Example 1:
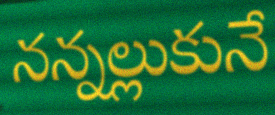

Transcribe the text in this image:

నన్నల్లుకునే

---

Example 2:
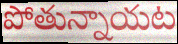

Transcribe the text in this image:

పోతున్నాయట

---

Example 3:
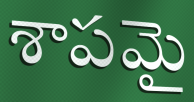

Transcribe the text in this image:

శాపమై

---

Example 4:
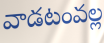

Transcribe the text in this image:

వాడటంవల్ల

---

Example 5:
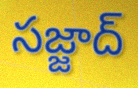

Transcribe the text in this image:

సజ్జాద్